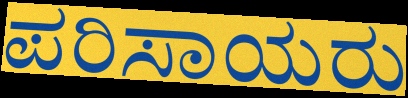
ಪರಿಸಾಯರು